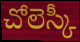
చోలెస్కీ